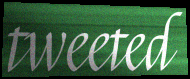
tweeted